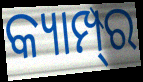
କ୍ୟାମ୍ପ୍‍ର